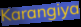
Karangiya